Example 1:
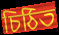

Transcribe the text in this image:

চিঠিত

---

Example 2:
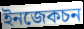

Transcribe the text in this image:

ইনজেকচন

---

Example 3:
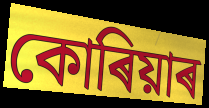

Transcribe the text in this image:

কোৰিয়াৰ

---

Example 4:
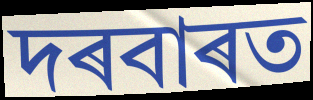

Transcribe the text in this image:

দৰবাৰত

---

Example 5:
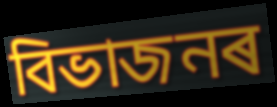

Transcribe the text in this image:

বিভাজনৰ